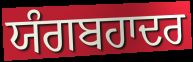
ਯੰਗਬਹਾਦਰ